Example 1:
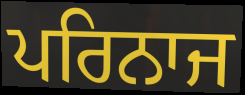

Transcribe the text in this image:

ਪਰਿਨਾਜ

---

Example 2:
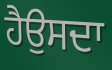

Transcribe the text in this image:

ਹੈਉਸਦਾ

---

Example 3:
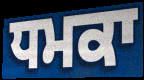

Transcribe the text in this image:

ਧਮਕਾ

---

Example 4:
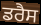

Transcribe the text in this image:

ਡਰੈਸ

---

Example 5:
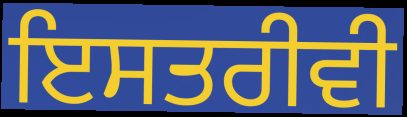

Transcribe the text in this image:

ਇਸਤਰੀਵੀ